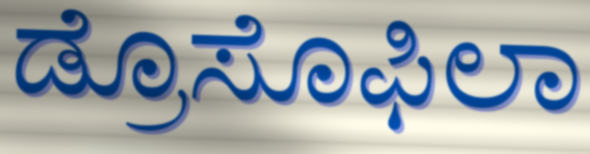
ಡ್ರೊಸೊಫಿಲಾ